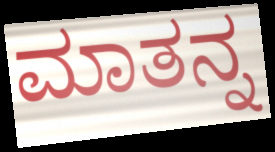
ಮಾತನ್ನ